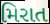
મિરાત